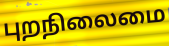
புறநிலைமை